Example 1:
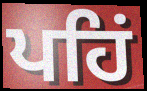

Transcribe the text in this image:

ਪਹਿਂ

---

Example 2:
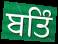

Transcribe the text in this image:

ਬਤਿੰ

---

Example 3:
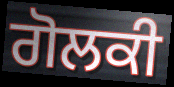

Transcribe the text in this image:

ਗੋਲਕੀ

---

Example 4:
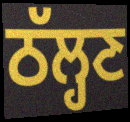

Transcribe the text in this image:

ਠੱਲ੍ਹਣ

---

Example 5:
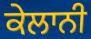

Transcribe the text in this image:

ਕੇਲਾਨੀ